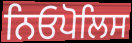
ਨਿਓਪੋਲਿਸ